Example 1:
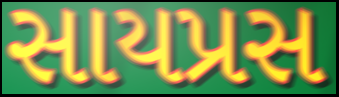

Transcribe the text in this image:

સાયપ્રસ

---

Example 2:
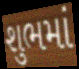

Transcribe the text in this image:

શુભમાં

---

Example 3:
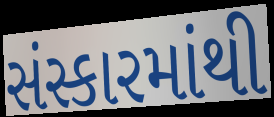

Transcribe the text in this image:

સંસ્કારમાંથી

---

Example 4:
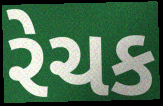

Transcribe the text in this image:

રેચક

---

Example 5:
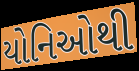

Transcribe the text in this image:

યોનિઓથી